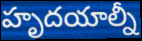
హృదయాల్నీ